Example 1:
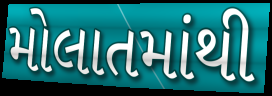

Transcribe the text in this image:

મોલાતમાંથી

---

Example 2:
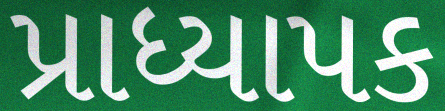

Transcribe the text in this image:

પ્રાધ્યાપક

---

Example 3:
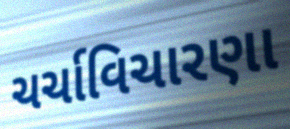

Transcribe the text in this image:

ચર્ચાવિચારણા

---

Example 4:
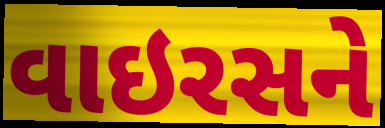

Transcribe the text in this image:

વાઇરસને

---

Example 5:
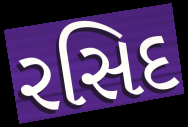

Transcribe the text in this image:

રસિદ